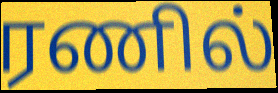
ரணில்